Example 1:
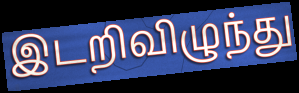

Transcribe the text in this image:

இடறிவிழுந்து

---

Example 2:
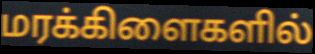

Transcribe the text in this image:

மரக்கிளைகளில்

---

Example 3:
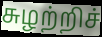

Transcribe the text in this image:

சுழற்றிச்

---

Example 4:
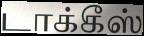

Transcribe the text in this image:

டாக்கீஸ்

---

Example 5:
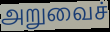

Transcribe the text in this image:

அறுவைச்